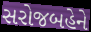
સરોજબહેને